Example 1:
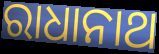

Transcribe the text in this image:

ରାଧାନାଥ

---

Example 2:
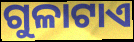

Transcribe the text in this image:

ଗୁଳାଟାଏ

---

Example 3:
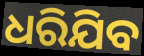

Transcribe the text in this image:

ଧରିଯିବ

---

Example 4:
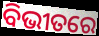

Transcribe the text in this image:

ବିଭୀତରେ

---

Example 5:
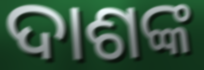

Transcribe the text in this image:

ଦାଶଙ୍କ